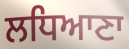
ਲਧਿਆਣਾ